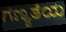
ಗಣ್ಯತೆಯ